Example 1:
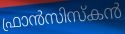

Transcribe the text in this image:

ഫ്രാൻസിസ്കൻ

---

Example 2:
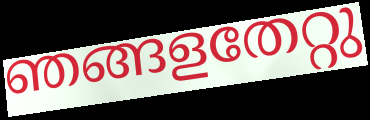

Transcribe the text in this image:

ഞങ്ങളതേറ്റു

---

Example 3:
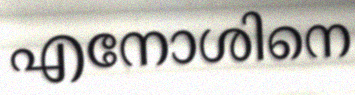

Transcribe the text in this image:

എനോശിനെ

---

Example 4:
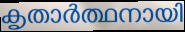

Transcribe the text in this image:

കൃതാർത്ഥനായി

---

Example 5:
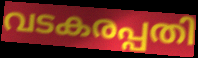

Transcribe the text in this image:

വടകരപ്പതി